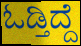
ಓಡ್ತಿದ್ದೆ